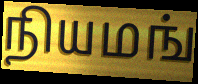
நியமங்